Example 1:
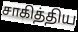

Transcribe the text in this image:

சாகித்திய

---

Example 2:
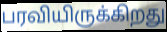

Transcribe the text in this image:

பரவியிருக்கிறது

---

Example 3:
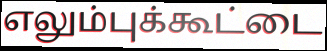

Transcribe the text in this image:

எலும்புக்கூட்டை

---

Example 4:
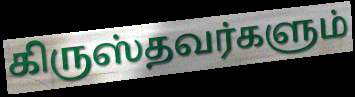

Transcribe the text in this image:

கிருஸ்தவர்களும்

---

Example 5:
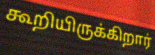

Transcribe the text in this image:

கூறியிருக்கிறார்